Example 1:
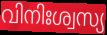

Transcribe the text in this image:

വിനിഃശ്വസ്യ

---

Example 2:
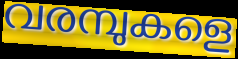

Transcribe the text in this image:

വരമ്പുകളെ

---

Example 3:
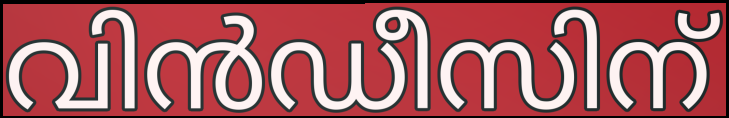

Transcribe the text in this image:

വിൻഡീസിന്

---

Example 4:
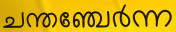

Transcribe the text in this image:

ചന്തഞ്ചേർന്ന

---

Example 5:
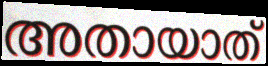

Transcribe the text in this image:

അതായാത്